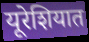
यूरेशियात